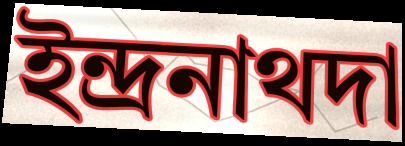
ইন্দ্রনাথদা